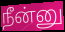
நீன்னு